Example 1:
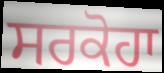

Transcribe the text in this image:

ਸਰਕੋਹਾ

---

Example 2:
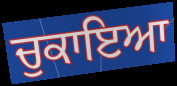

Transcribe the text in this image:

ਚੁਕਾਇਆ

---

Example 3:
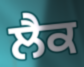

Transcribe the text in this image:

ਲੈਕ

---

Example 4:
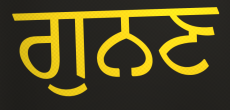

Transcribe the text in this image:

ਗੁਨਣ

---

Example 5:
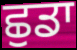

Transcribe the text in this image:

ਛੁਡਾ